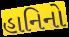
હાનિનો